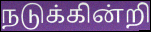
நடுக்கின்றி